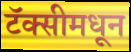
टॅक्सीमधून